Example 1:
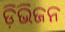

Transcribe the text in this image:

ଡ଼ିଭିଜନ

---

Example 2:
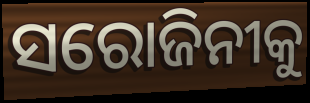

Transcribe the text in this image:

ସରୋଜିନୀକୁ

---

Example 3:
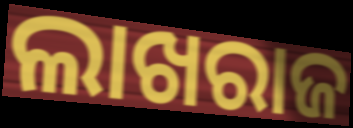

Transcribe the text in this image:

ଲାଖରାଜ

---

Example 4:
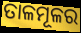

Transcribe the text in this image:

ତାଳମୂଳର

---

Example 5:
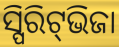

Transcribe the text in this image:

ସ୍ପିରିଟ୍‌ଭିଜା